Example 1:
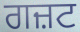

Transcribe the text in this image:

ਗਜ਼ਟ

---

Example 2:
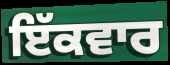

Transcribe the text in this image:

ਇੱਕਵਾਰ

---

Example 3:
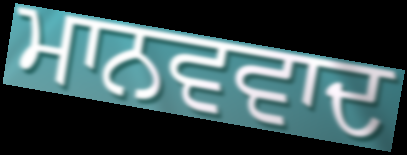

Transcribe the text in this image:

ਮਾਨਵਵਾਦ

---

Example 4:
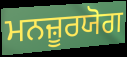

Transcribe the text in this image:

ਮਨਜ਼ੂਰਯੋਗ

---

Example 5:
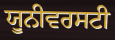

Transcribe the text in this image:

ਯੂਨੀਵਰਸਟੀ